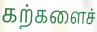
கற்களைச்